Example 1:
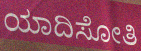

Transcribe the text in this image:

ಯಾದಿಸೋತಿ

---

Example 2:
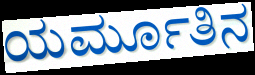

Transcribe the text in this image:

ಯರ್ಮೂತಿನ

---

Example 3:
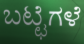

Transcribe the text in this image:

ಬಟ್ಟೆಗಳೆ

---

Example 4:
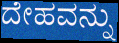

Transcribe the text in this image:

ದೇಹವನ್ನು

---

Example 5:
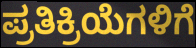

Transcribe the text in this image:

ಪ್ರತಿಕ್ರಿಯೆಗಳಿಗೆ